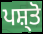
ਪਸ਼੍ਤੋ